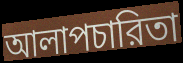
আলাপচারিতা